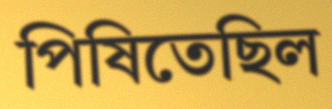
পিষিতেছিল